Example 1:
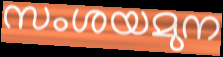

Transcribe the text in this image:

സംശയമുന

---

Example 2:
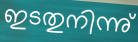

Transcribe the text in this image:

ഇടതുനിന്നു്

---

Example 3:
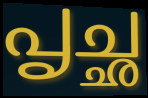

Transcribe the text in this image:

പൃച്ഛ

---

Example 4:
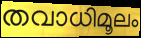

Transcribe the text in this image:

തവാധിമൂലം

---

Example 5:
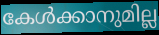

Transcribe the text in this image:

കേൾക്കാനുമില്ല